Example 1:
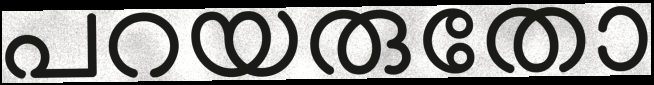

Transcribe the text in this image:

പറയരുതോ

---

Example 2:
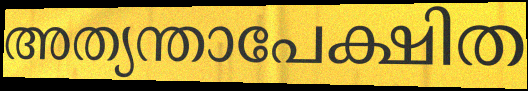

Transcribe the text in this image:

അത്യന്താപേക്ഷിത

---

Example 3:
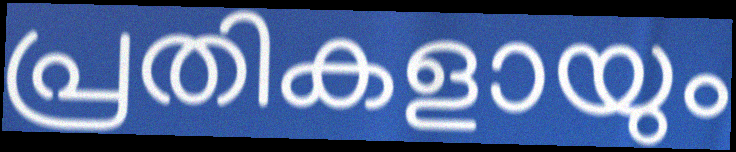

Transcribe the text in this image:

പ്രതികളായും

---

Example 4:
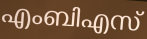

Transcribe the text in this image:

എംബിഎസ്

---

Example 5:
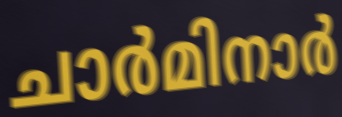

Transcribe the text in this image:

ചാർമിനാർ